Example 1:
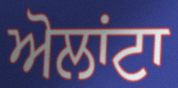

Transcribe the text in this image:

ਅੋਲਾਂਟਾ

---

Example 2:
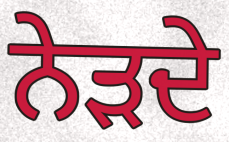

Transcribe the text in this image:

ਨੇੜਦੇ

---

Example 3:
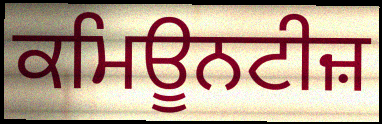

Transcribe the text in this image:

ਕਮਿਊਨਟੀਜ਼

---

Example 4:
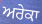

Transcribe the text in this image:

ਅਰੇਕਾ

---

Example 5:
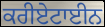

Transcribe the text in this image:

ਕਰੀਏਟਾਈਨ